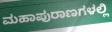
ಮಹಾಪುರಾಣಗಳಲ್ಲಿ